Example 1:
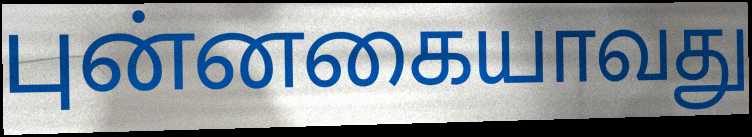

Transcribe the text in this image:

புன்னகையாவது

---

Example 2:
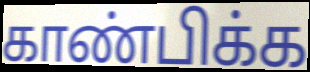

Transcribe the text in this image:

காண்பிக்க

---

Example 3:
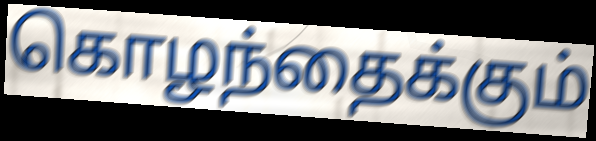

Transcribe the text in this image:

கொழந்தைக்கும்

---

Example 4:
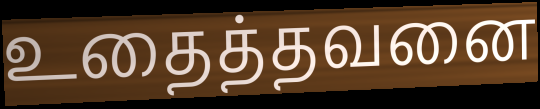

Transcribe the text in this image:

உதைத்தவனை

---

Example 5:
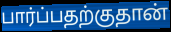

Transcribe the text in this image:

பார்ப்பதற்குதான்